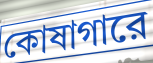
কোষাগারে